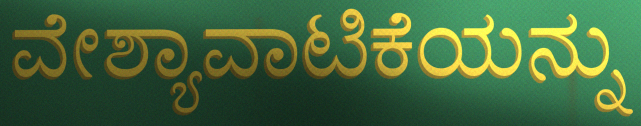
ವೇಶ್ಯಾವಾಟಿಕೆಯನ್ನು